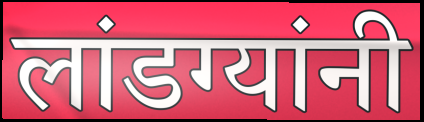
लांडग्यांनी